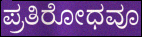
ಪ್ರತಿರೋಧವೂ